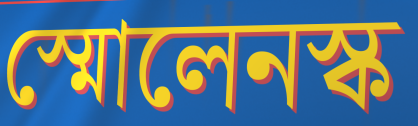
স্মোলেনস্ক